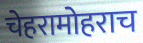
चेहरामोहराच